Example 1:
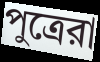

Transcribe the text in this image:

পুত্রেরা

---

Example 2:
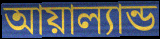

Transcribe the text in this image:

আয়াল্যান্ড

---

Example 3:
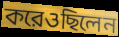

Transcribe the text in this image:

করেওছিলেন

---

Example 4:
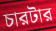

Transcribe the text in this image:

চারটার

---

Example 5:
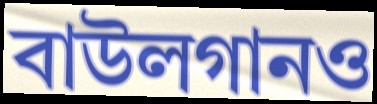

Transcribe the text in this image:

বাউলগানও